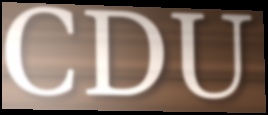
CDU